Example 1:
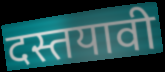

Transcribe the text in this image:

दस्तयावी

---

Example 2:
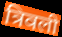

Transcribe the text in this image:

त्रिवली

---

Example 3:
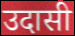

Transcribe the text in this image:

उदासी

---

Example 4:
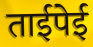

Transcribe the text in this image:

ताईपेई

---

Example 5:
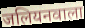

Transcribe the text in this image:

जलियनवाला